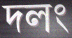
দলং